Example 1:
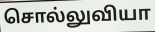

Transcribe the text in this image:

சொல்லுவியா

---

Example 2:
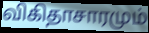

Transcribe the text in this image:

விகிதாசாரமும்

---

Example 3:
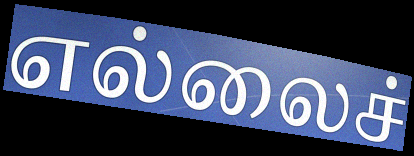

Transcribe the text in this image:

எல்லைச்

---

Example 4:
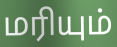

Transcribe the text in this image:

மரியும்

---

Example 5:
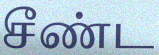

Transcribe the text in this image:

சீண்ட